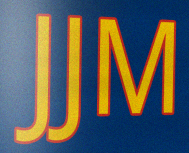
JJM